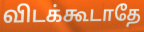
விடக்கூடாதே